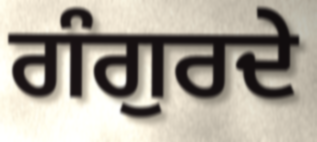
ਗੰਗੁਰਦੇ